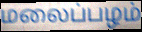
மலைப்பழம்